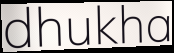
dhukha